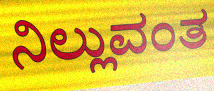
ನಿಲ್ಲುವಂತ